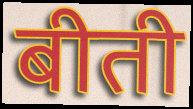
बीती